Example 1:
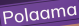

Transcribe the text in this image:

Polaama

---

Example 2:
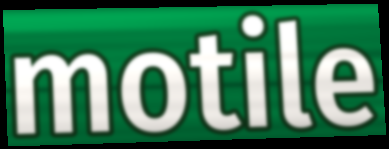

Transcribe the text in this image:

motile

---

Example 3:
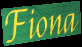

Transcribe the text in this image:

Fiona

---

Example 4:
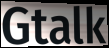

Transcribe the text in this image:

Gtalk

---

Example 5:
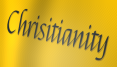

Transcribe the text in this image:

Chrisitianity